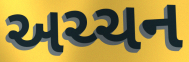
અચ્ચન